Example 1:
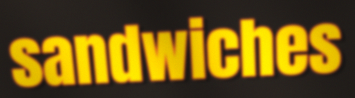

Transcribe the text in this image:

sandwiches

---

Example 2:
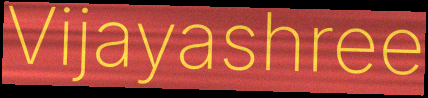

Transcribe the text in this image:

Vijayashree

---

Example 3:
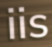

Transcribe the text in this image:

iis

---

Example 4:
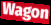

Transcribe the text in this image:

Wagon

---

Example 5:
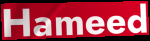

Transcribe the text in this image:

Hameed